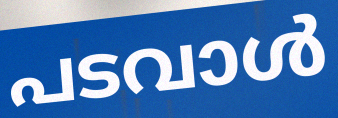
പടവാൾ